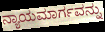
ನ್ಯಾಯಮಾರ್ಗವನ್ನು